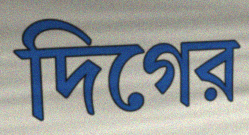
দিগের